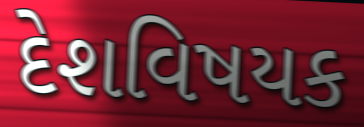
દેશવિષયક